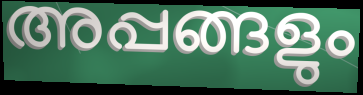
അപ്പങ്ങളും